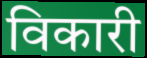
विकारी